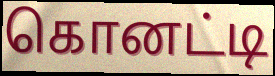
கொனட்டி